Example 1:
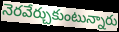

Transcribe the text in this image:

నెరవేర్చుకుంటున్నారు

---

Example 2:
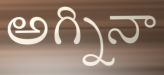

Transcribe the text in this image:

అగ్నినా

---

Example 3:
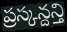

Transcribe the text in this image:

ప్రస్కన్దన్తి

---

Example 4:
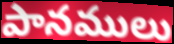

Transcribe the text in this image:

పానములు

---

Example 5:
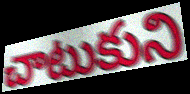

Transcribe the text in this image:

చాటుకుని